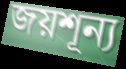
জয়শূন্য